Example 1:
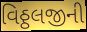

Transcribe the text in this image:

વિઠ્ઠલજીની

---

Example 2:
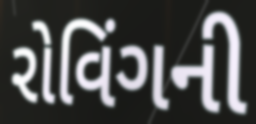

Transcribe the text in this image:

રોવિંગની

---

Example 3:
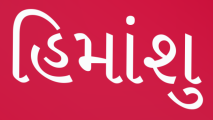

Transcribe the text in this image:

હિમાંશુ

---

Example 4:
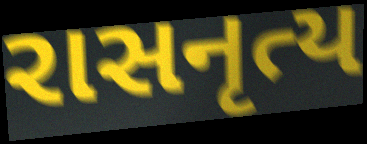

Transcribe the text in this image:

રાસનૃત્ય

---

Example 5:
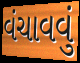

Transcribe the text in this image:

વંચાવવું